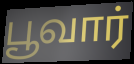
பூவார்